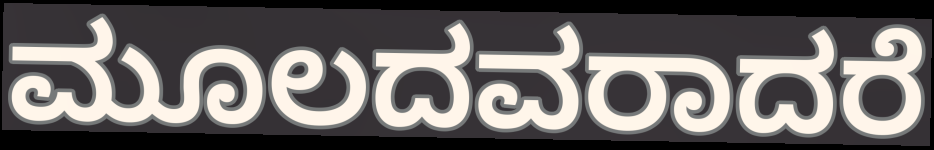
ಮೂಲದವರಾದರೆ